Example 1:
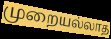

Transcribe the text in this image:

முறையல்லாத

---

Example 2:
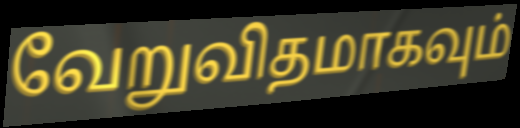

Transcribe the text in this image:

வேறுவிதமாகவும்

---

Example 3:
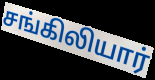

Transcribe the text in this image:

சங்கிலியார்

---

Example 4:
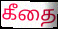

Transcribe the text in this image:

கீதை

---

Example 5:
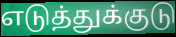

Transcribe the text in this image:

எடுத்துக்குடு